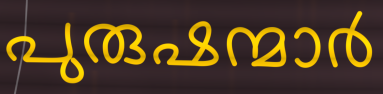
പുരുഷന്മാർ